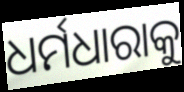
ଧର୍ମଧାରାକୁ